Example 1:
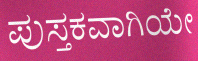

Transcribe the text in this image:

ಪುಸ್ತಕವಾಗಿಯೇ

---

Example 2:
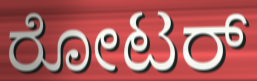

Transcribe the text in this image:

ರೋಟರ್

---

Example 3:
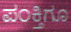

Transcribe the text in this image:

ಪಂಕ್ತಿಗೂ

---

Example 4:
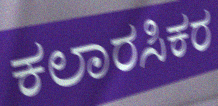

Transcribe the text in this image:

ಕಲಾರಸಿಕರ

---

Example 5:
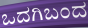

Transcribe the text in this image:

ಒದಗಿಬಂದ